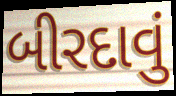
બીરદાવું